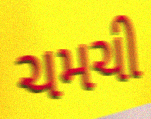
ચમચી